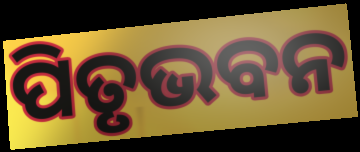
ପିତୃଭବନ